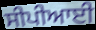
ਸੀਪੀਆਈ